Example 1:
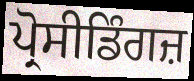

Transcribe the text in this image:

ਪ੍ਰੋਸੀਡਿੰਗਜ਼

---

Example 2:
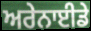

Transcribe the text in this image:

ਅਰੇਨਾਈਡੇ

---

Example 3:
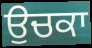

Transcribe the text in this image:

ਉਚਕਾ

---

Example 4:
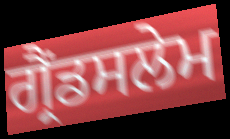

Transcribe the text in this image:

ਗ੍ਰੈਂਡਸਲੇਮ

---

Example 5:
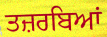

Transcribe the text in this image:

ਤਜ਼ਰਬਿਆਂ